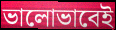
ভালোভাবেই